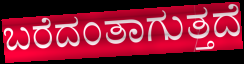
ಬರೆದಂತಾಗುತ್ತದೆ